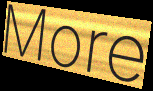
More